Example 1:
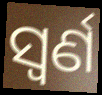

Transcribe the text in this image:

ସ୍ୱର୍ଣ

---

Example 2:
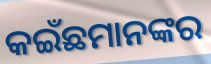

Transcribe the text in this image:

କଇଁଛମାନଙ୍କର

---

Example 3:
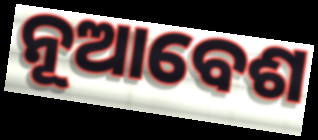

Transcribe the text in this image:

ନୂଆବେଶ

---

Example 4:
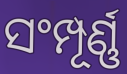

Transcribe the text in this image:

ସଂମ୍ପୂର୍ଣ୍ଣ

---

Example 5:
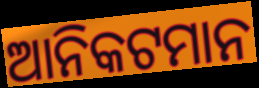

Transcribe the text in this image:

ଆନିକଟମାନ